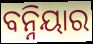
ବନ୍ନିୟାର